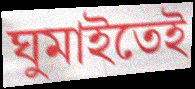
ঘুমাইতেই